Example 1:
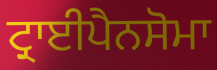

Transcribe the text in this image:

ਟ੍ਰਾਈਪੈਨਸੋਮਾ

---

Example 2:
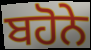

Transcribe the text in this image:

ਬਹੋਨੇ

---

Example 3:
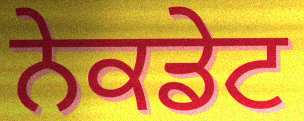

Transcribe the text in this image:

ਨੇਕਡੇਟ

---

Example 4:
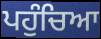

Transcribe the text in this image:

ਪਹੁੰਚਿਆ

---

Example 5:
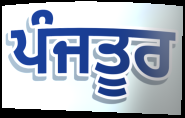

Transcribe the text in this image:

ਪੰਜਤੂਰ